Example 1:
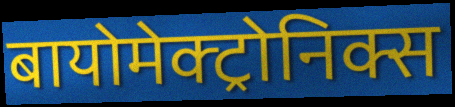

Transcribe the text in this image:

बायोमेक्ट्रोनिक्स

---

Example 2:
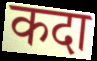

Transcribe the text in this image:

कदा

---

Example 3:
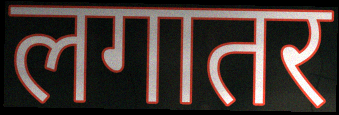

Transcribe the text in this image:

लगातर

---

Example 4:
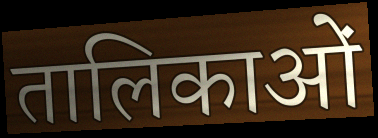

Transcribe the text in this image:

तालिकाओं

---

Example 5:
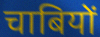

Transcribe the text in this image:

चाबियों